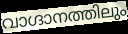
വാഗ്ദാനത്തിലും